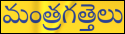
మంత్రగత్తెలు